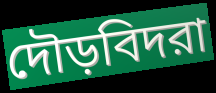
দৌড়বিদরা